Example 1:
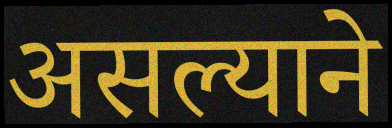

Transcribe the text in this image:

असल्‍याने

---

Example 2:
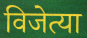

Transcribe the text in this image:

विजेत्या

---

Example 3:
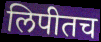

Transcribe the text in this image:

लिपीतच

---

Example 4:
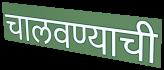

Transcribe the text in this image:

चालवण्याची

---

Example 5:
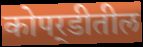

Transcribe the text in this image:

कोपर्डीतील